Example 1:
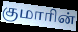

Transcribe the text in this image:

குமாரின்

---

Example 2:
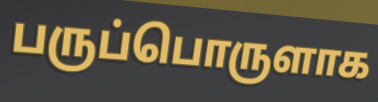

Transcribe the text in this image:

பருப்பொருளாக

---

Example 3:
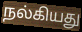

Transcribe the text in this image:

நல்கியது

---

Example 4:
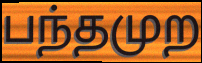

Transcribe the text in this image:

பந்தமுற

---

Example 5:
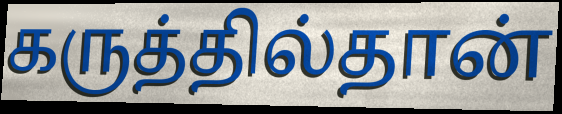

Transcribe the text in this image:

கருத்தில்தான்